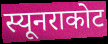
स्यूनराकोट